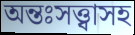
অন্তঃসত্ত্বাসহ